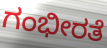
ಗಂಭೀರತೆ